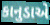
કાનુડાએ